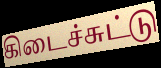
கிடைச்சுட்டு